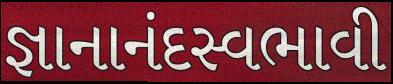
જ્ઞાનાનંદસ્વભાવી